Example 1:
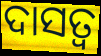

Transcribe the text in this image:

ଦାସତ୍ଵ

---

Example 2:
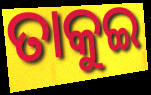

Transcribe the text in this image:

ତାକୁଇ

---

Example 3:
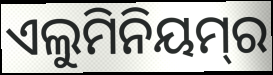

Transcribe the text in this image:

ଏଲୁମିନିୟମ୍‌ର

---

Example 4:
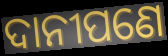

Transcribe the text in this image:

ଦାନୀପଣେ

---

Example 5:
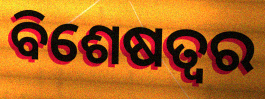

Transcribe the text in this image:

ବିଶେଷତ୍ବର